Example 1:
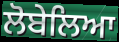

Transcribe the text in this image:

ਲੋਬੇਲਿਆ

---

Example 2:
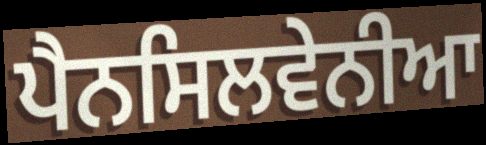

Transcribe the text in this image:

ਪੈਨਸਿਲਵੇਨੀਆ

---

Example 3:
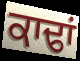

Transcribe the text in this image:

ਕਾਢਾਂ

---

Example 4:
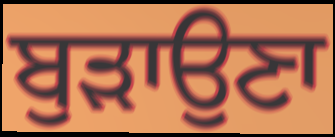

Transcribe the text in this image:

ਬੁੜਾਉਣਾ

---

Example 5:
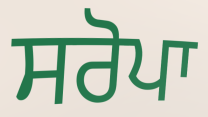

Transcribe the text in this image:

ਸਰੋਪਾ